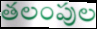
తలంపుల